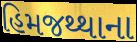
હિમજથ્થાના